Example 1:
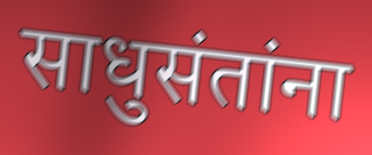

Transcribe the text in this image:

साधुसंतांना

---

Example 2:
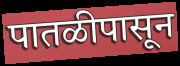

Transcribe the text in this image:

पातळीपासून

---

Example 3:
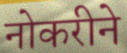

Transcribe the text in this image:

नोकरीने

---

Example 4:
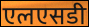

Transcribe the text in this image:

एलएसडी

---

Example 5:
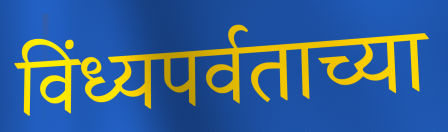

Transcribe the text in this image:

विंध्यपर्वताच्या